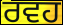
ਰਵਹ